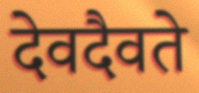
देवदैवते